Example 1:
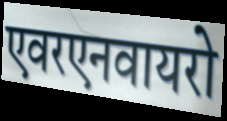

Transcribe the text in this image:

एवरएनवायरो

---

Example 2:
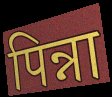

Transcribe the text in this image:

पिन्ना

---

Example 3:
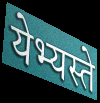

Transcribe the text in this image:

येभ्यस्ते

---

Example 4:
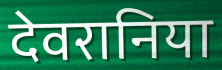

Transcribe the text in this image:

देवरानिया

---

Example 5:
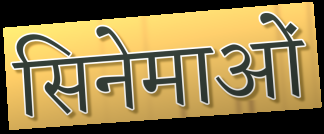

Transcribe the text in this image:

सिनेमाओं